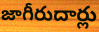
జాగీరుదార్లు